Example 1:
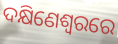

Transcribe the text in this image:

ଦକ୍ଷିଣେଶ୍ୱରରେ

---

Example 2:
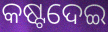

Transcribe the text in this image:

କଷ୍ଟଦେଇ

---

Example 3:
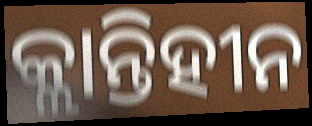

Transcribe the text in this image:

କ୍ଲାନ୍ତିହୀନ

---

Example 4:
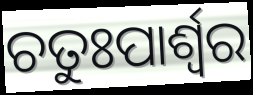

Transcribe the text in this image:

ଚତୁଃପାର୍ଶ୍ଵର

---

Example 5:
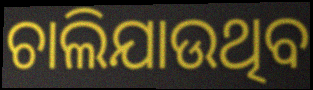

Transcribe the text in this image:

ଚାଲିଯାଉଥିବ